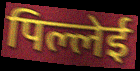
पिल्लेई